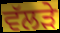
ਵੱਲੜੇ